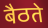
बैठते